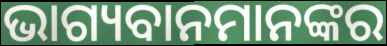
ଭାଗ୍ୟବାନମାନଙ୍କର